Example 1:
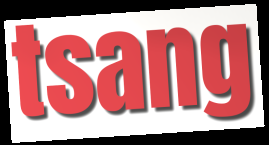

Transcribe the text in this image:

tsang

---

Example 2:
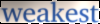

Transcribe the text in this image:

weakest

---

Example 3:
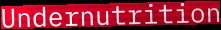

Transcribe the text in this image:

Undernutrition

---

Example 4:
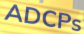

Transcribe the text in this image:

ADCPs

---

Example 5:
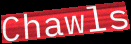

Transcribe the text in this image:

Chawls